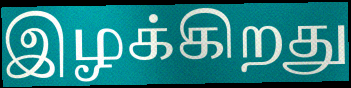
இழக்கிறது